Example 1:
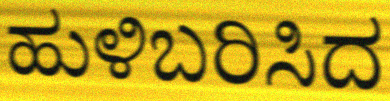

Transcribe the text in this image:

ಹುಳಿಬರಿಸಿದ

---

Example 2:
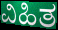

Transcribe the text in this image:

ವಿಹಿತ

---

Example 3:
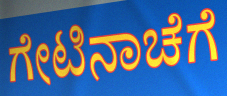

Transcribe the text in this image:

ಗೇಟಿನಾಚೆಗೆ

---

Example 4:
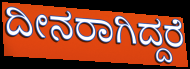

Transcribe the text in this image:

ದೀನರಾಗಿದ್ದರೆ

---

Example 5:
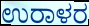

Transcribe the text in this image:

ಉರಾಳರ